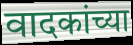
वादकांच्या